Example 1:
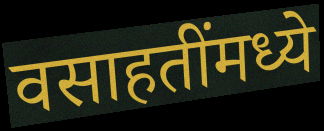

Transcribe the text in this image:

वसाहतींमध्ये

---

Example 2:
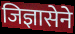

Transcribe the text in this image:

जिज्ञासेने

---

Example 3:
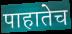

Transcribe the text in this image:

पाहातेच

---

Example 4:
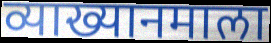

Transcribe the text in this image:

व्याख्यानमाला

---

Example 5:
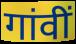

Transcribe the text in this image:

गांवीं